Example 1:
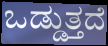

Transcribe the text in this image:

ಒಡ್ಡುತ್ತದೆ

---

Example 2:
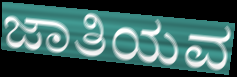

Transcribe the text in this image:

ಜಾತಿಯವ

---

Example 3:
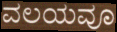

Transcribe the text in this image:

ವಲಯವೂ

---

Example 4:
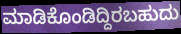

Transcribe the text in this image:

ಮಾಡಿಕೊಂಡಿದ್ದಿರಬಹುದು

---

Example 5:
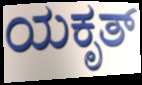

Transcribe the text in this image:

ಯಕೃತ್